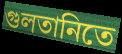
গুলতানিতে